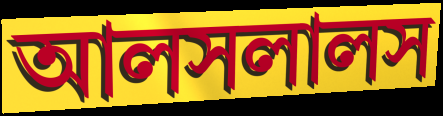
আলসলালস